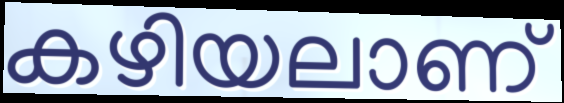
കഴിയലാണ്